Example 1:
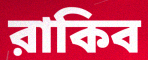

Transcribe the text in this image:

রাকিব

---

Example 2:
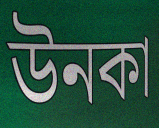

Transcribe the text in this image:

উনকা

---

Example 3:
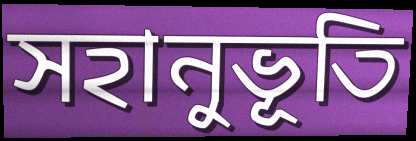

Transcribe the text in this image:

সহানুভূতি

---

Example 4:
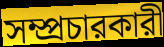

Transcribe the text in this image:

সম্প্রচারকারী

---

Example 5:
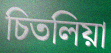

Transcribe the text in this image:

চিতলিয়া